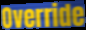
Override